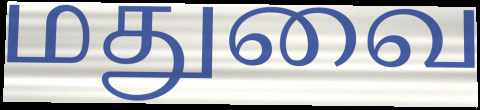
மதுவை